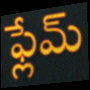
ఫ్లేమ్